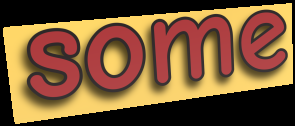
some